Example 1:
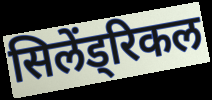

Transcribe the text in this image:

सिलेंड्रिकल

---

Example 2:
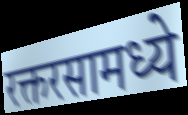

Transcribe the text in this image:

रक्तरसामध्ये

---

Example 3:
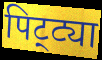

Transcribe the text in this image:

पिट्ट्या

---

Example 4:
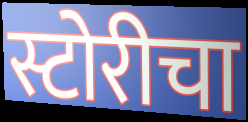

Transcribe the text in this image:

स्टोरीचा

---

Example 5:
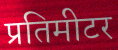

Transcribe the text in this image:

प्रतिमीटर